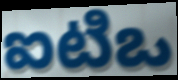
ఐటిఒ